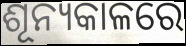
ଶୂନ୍ୟକାଳରେ